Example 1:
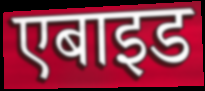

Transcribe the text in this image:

एबाइड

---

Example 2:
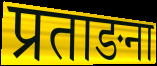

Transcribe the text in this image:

प्रताङना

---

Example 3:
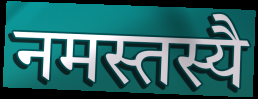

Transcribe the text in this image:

नमस्तस्यै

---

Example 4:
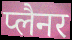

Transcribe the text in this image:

प्लैनर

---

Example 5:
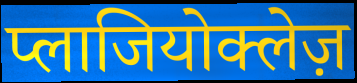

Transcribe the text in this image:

प्लाजियोक्लेज़